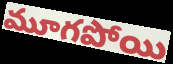
మూగపోయి